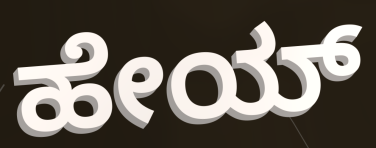
ಹೇಯ್